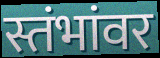
स्तंभांवर